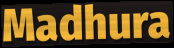
Madhura